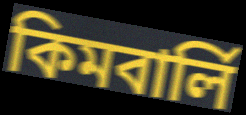
কিমবার্লি